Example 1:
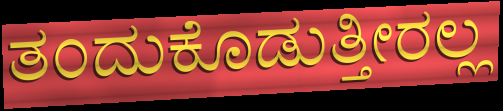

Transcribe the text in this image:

ತಂದುಕೊಡುತ್ತೀರಲ್ಲ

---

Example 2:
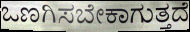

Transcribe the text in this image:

ಒಣಗಿಸಬೇಕಾಗುತ್ತದೆ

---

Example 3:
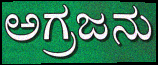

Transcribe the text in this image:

ಅಗ್ರಜನು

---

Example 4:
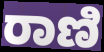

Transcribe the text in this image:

ರಾಣಿ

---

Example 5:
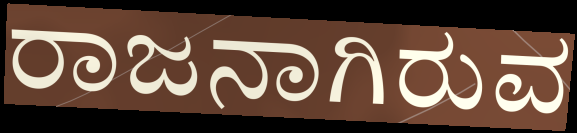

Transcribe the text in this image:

ರಾಜನಾಗಿರುವ